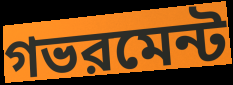
গভরমেন্ট